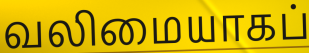
வலிமையாகப்